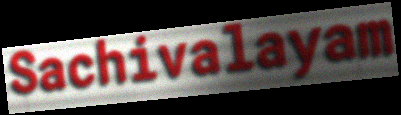
Sachivalayam